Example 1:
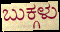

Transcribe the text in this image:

ಬುಕ್ಗಳು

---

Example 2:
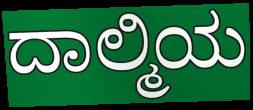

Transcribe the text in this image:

ದಾಲ್ಮಿಯ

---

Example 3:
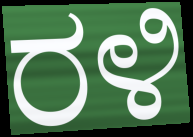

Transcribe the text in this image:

ರಳಿ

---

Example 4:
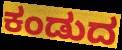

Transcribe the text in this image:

ಕಂಡುದ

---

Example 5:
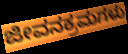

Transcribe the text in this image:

ಜೀವನಕ್ರಮಗಳು